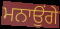
ਮਨਾਉਂਗੇ